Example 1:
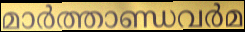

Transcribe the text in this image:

മാർത്താണ്ഡവർമ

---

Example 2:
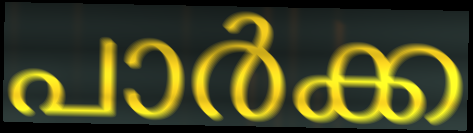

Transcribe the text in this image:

പാർക്ക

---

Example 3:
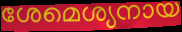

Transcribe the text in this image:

ശേമെശ്യനായ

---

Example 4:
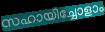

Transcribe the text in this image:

സഹായിച്ചോളാം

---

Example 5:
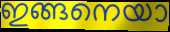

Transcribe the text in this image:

ഇങ്ങനെയാ